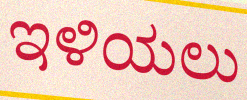
ಇಳಿಯಲು